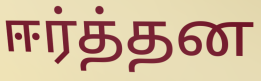
ஈர்த்தன